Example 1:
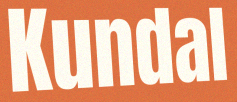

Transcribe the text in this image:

Kundal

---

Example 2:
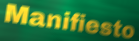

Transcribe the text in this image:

Manifiesto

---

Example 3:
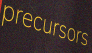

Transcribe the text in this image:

precursors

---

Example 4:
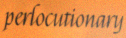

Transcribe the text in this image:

perlocutionary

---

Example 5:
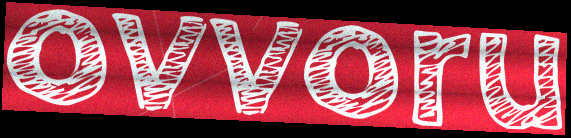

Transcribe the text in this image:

ovvoru